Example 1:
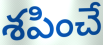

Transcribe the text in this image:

శపించే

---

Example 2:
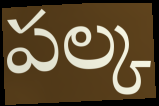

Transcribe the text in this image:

పల్క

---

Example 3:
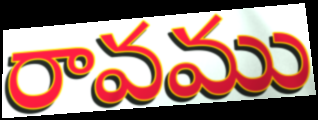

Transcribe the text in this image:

రావము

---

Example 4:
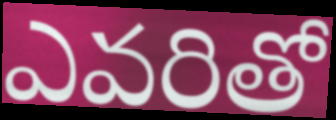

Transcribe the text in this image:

ఎవరితో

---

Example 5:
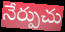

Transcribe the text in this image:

నేర్పుచు